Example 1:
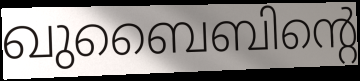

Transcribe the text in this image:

ഖുബൈബിന്റെ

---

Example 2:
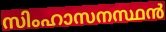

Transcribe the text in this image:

സിംഹാസനസ്ഥൻ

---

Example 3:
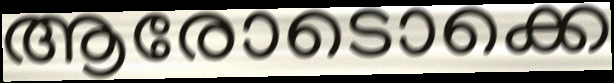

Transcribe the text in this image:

ആരോടൊക്കെ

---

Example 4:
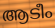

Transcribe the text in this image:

ആടീം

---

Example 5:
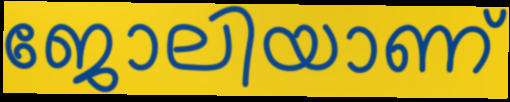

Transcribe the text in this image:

ജോലിയാണ്